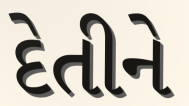
દેતીને